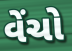
વેંચો